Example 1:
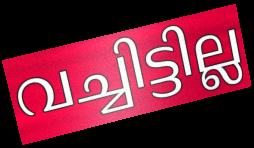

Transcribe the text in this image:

വച്ചിട്ടില്ല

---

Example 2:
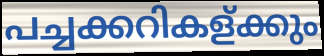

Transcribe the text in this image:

പച്ചക്കറികള്ക്കും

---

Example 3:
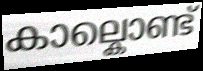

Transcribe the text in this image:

കാല്കൊണ്ട്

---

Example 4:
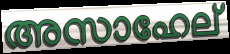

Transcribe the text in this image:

അസാഹേല്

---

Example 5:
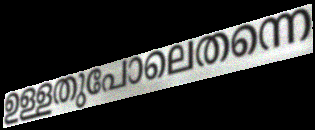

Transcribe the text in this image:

ഉള്ളതുപോലെതന്നെ